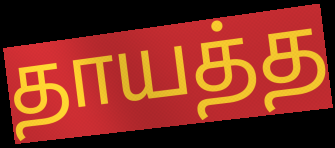
தாயத்த